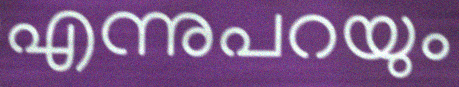
എന്നുപറയും